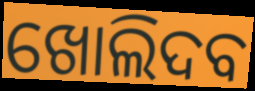
ଖୋଲିଦବ